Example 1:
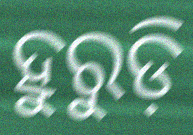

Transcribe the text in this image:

ହୁରୁଡ଼ି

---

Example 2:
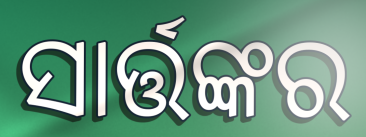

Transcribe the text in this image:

ସାର୍ତ୍ତଙ୍କର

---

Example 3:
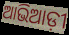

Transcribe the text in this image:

ଆଭିଆଡ଼ୀ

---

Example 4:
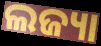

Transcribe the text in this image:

ଲଜ୍ୟା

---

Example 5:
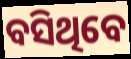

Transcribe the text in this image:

ବସିଥିବେ